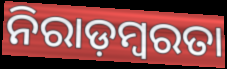
ନିରାଡ଼ମ୍ବରତା